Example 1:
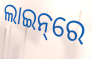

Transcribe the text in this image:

ଲାଇନ୍‌ରେ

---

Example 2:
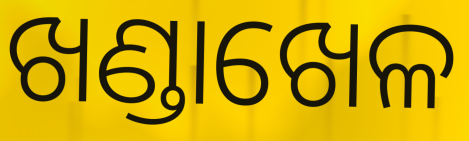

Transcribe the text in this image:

ଖଣ୍ଡାଖେଳ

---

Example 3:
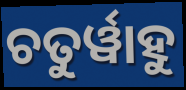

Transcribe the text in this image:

ଚତୁର୍ୱାହୁ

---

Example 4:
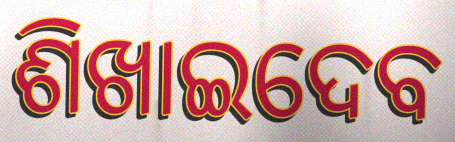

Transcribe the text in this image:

ଶିଖାଇଦେବ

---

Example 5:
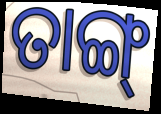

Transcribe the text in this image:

ତାଙ୍ଗ୍